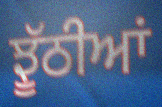
ਝੂੱਠੀਆਂ